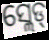
ସ୍ଲେଡ୍